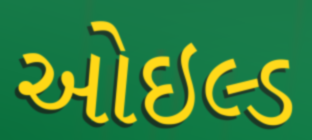
ઓઇલ્ડ